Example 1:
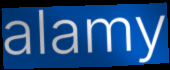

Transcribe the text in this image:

alamy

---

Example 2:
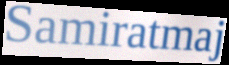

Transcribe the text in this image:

Samiratmaj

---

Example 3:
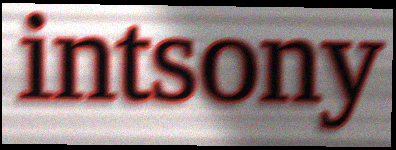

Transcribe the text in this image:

intsony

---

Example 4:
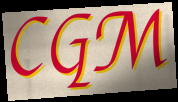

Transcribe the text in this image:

CGM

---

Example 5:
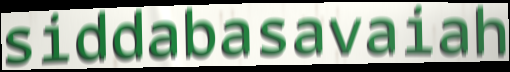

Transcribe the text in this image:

siddabasavaiah